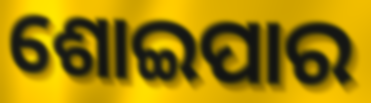
ଶୋଇପାର